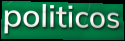
politicos